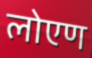
लोएण